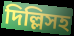
দিল্লিসহ